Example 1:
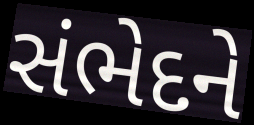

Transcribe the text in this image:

સંભેદને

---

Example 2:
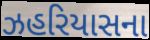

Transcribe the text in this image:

ઝહરિયાસના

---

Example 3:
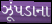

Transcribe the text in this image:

ઝૂંપડાના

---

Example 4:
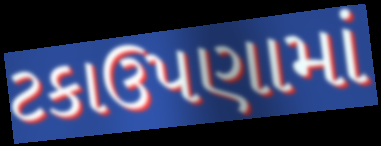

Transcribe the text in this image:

ટકાઉપણામાં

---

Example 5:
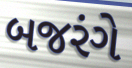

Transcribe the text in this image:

બજરંગે